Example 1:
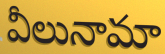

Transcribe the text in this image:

వీలునామా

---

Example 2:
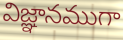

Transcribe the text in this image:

విజ్ఞానముగా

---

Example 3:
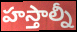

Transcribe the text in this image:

హస్తాల్నీ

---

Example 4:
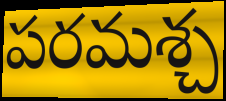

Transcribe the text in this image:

పరమశ్చ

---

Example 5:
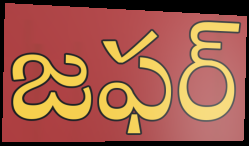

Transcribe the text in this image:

జఫర్